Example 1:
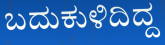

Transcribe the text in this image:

ಬದುಕುಳಿದಿದ್ದ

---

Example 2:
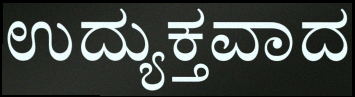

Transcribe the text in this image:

ಉದ್ಯುಕ್ತವಾದ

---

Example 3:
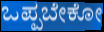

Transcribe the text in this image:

ಒಪ್ಪಬೇಕೋ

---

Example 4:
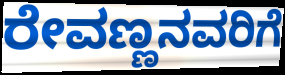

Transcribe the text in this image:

ರೇವಣ್ಣನವರಿಗೆ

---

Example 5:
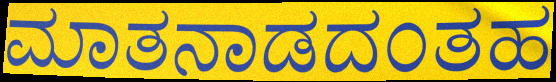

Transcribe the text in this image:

ಮಾತನಾಡದಂತಹ